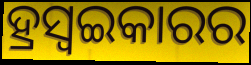
ହ୍ରସ୍ୱଇକାରର